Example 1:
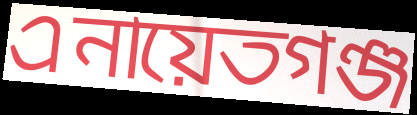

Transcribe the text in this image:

এনায়েতগঞ্জ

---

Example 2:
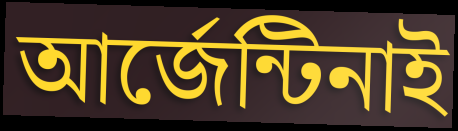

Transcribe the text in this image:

আর্জেন্টিনাই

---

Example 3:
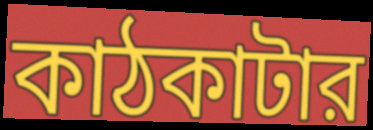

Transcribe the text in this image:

কাঠকাটার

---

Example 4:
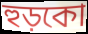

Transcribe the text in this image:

হুড়কো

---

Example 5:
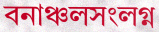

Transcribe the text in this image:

বনাঞ্চলসংলগ্ন